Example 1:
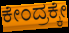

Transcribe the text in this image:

ಕೇಂದ್ರಕ್ಕೇ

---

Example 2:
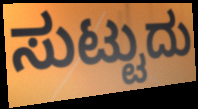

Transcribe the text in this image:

ಸುಟ್ಟುದು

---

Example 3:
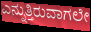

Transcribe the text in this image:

ಎನ್ನುತ್ತಿರುವಾಗಲೇ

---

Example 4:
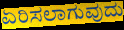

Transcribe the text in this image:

ಏರಿಸಲಾಗುವುದು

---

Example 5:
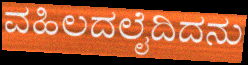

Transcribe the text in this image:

ವಹಿಲದಲೈದಿದನು